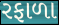
રફાળા